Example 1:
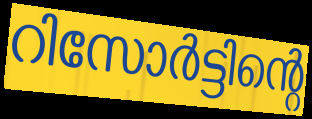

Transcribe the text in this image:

റിസോർട്ടിന്റെ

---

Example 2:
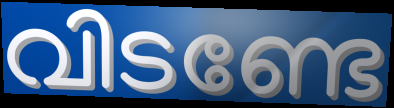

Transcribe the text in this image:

വിടണ്ടേ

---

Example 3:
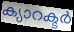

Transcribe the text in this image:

ക്യാറക്ടർ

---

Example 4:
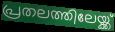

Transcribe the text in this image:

പ്രതലത്തിലേയ്ക്ക്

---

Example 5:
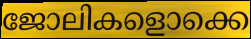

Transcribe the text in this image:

ജോലികളൊക്കെ